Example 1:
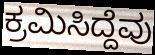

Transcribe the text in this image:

ಕ್ರಮಿಸಿದ್ದೆವು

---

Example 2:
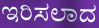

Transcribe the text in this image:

ಇರಿಸಲಾದ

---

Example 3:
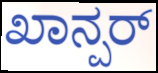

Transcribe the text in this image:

ಖಾನ್ಪರ್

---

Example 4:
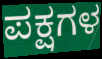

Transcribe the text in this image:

ಪಕ್ಷಗಳ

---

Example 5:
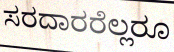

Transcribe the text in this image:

ಸರದಾರರೆಲ್ಲರೂ